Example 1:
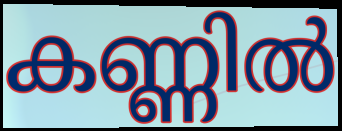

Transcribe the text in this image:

കണ്ണിൽ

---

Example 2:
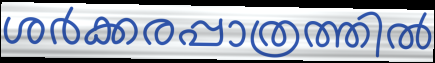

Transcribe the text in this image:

ശർക്കരപ്പാത്രത്തിൽ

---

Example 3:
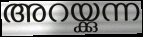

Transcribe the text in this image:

അറയ്ക്കുന്ന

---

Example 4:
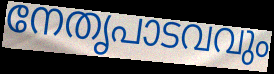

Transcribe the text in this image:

നേതൃപാടവവും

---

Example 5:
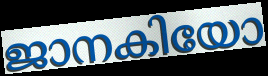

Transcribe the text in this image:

ജാനകിയോ